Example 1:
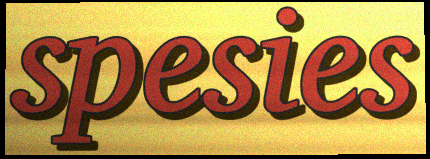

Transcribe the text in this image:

spesies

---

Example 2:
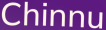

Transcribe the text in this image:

Chinnu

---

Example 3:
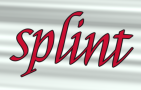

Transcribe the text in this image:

splint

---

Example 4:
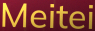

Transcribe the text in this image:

Meitei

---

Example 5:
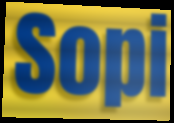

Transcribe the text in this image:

Sopi